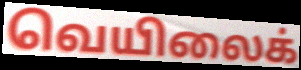
வெயிலைக்